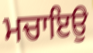
ਮਚਾਇਉ